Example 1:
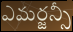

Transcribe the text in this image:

ఎమర్జన్సీ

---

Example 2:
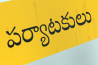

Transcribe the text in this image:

పర్యాటకులు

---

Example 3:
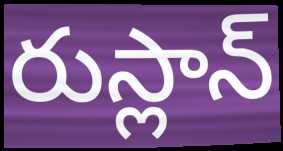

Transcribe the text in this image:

రుస్లాన్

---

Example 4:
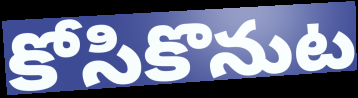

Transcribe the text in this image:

కోసికొనుట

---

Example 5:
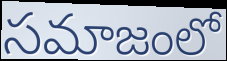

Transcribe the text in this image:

సమాజంలో